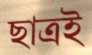
ছাত্ৰই